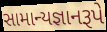
સામાન્યજ્ઞાનરૂપે